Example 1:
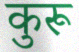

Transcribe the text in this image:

कुरू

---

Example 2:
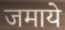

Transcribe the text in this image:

जमाये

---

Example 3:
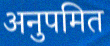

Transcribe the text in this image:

अनुपमित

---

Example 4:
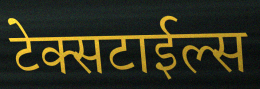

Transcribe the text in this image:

टेक्सटाईल्स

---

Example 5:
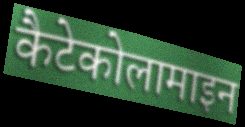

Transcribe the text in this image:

कैटेकोलामाइन